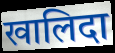
खालिदा